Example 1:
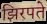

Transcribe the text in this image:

झिरपते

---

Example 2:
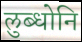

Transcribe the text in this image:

लुब्धोनि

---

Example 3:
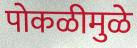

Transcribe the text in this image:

पोकळीमुळे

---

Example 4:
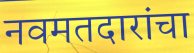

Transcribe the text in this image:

नवमतदारांचा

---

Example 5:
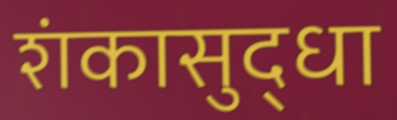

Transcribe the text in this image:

शंकासुद्धा